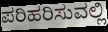
ಪರಿಹರಿಸುವಲ್ಲಿ